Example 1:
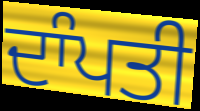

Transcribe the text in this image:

ਦਾੰਪਤੀ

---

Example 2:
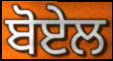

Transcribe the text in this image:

ਬੋਏਲ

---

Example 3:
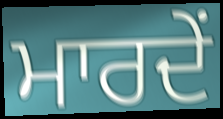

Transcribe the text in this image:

ਮਾਰਦੇਂ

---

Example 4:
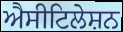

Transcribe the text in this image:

ਐਸੀਟਿਲੇਸ਼ਨ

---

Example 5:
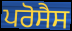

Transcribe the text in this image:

ਪਰੋਸੈਸ